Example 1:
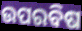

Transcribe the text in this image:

ଉପରବିଷ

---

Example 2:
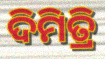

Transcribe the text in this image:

ଦିମିତ୍ରି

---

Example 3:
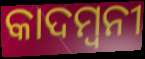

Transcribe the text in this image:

କାଦମ୍ୱନୀ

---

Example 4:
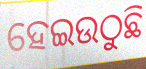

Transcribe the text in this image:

ହେଇଉଠୁଛି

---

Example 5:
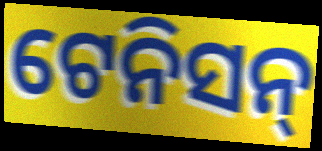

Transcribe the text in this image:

ଟେନିସନ୍